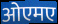
ओएमए